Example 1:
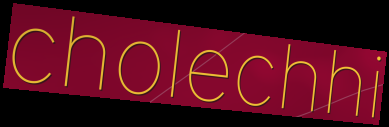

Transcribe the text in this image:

cholechhi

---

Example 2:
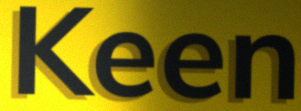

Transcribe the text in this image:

Keen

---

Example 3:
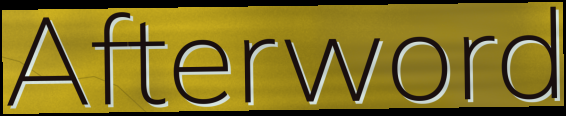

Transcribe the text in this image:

Afterword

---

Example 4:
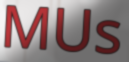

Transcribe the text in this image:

MUs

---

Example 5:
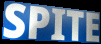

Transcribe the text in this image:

SPITE